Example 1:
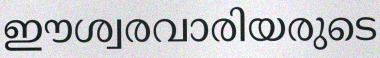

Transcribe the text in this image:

ഈശ്വരവാരിയരുടെ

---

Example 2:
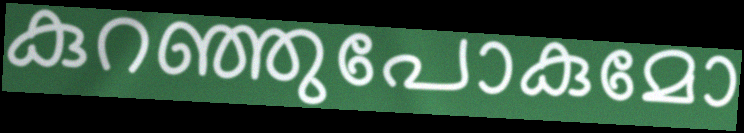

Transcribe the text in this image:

കുറഞ്ഞുപോകുമോ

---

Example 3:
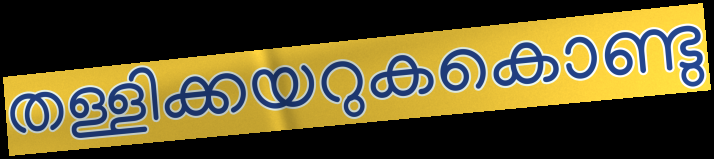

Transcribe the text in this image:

തള്ളിക്കയറുകകൊണ്ടു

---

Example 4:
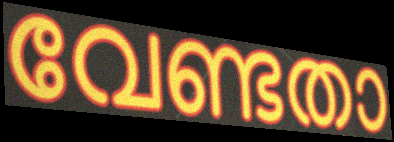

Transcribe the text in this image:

വേണ്ടതാ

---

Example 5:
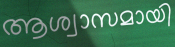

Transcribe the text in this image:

ആശ്വാസമായി